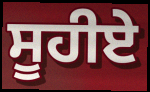
ਸੂਹੀਏ